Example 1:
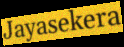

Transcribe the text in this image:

Jayasekera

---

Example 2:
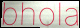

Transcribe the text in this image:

bhola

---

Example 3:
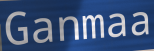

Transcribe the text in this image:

Ganmaa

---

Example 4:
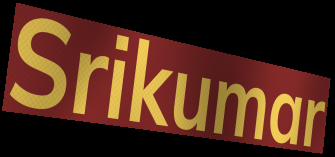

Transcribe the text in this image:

Srikumar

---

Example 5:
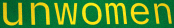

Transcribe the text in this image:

unwomen